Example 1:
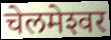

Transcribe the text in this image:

चेलमेश्‍वर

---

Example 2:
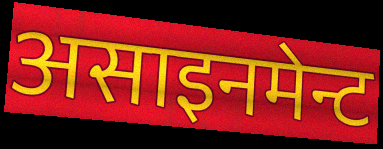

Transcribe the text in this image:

असाइनमेन्ट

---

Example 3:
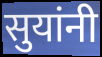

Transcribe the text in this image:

सुयांनी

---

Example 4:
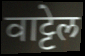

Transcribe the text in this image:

वाट्टेल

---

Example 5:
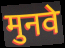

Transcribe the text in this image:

मुनवे